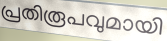
പ്രതിരൂപവുമായി